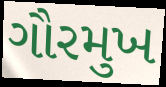
ગૌરમુખ